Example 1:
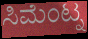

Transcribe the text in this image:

ಸಿಮೆಂಟ್ನ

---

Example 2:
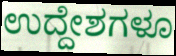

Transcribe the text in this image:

ಉದ್ದೇಶಗಳೂ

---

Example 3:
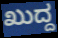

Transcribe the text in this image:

ಖುದ್ದ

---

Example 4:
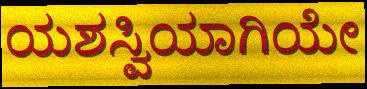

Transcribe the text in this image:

ಯಶಸ್ವಿಯಾಗಿಯೇ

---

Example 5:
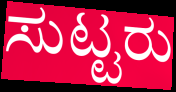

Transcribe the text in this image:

ಸುಟ್ಟರು